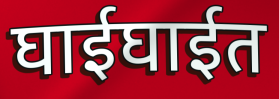
घाईघाईत